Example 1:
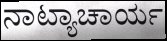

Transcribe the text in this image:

ನಾಟ್ಯಾಚಾರ್ಯ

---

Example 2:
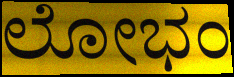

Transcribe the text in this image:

ಲೋಭಂ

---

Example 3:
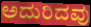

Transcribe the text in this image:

ಅದುರಿದವು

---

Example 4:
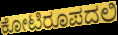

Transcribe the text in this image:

ಕೋಟಿರೂಪದಲಿ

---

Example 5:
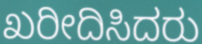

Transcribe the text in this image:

ಖರೀದಿಸಿದರು